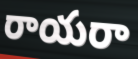
రాయరా